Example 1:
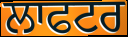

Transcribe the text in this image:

ਲਾਫਟਰ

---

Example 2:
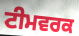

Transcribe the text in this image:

ਟੀਮਵਰਕ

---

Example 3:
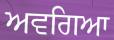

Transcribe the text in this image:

ਅਵਗਿਆ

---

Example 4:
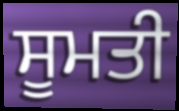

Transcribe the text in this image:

ਸੂਮਤੀ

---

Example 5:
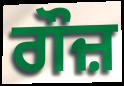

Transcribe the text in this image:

ਗੌਜ਼